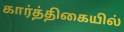
கார்த்திகையில்